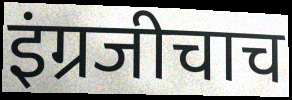
इंग्रजीचाच